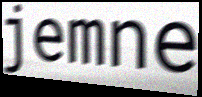
jemne